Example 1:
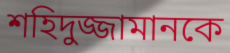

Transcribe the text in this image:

শহিদুজ্জামানকে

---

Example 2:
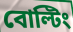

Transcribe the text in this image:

বোল্টিং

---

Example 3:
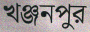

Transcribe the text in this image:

খঞ্জনপুর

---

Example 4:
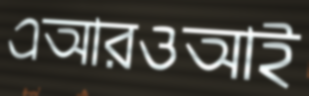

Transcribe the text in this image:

এআরওআই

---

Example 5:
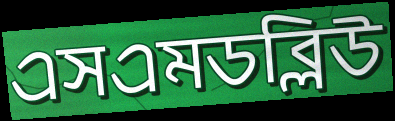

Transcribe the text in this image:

এসএমডব্লিউ